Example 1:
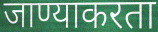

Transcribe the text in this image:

जाण्याकरता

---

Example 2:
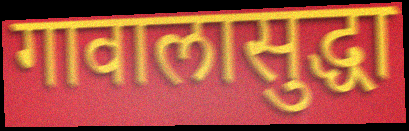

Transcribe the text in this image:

गावालासुद्धा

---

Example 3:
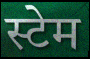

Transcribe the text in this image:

स्टेम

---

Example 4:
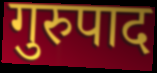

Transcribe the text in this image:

गुरुपाद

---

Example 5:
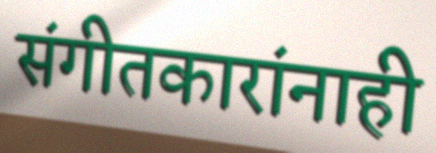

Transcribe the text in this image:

संगीतकारांनाही